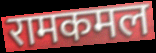
रामकमल